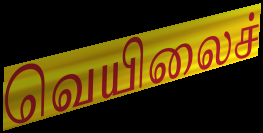
வெயிலைச்